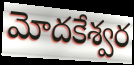
మోదకేశ్వర